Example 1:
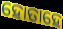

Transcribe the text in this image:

ହୋତାହେ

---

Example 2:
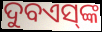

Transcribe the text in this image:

ଦୁବଏସ୍‌ଙ୍କ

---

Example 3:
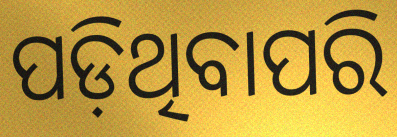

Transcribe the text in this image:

ପଡ଼ିଥିବାପରି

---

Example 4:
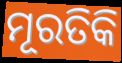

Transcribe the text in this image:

ମୂରତିକି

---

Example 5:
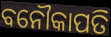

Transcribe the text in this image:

ବନୌକାପତି